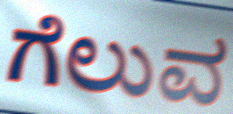
ಗೆಲುವ